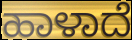
ಹಾಳಾದೆ